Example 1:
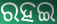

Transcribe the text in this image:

ରହଇ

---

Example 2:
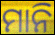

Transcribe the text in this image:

ମାନି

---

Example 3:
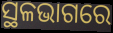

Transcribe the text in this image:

ସ୍ଥଳଭାଗରେ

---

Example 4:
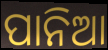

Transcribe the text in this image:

ପାନିଆ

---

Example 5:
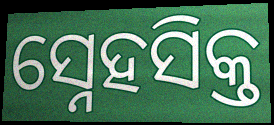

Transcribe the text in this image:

ସ୍ନେହସିକ୍ତ